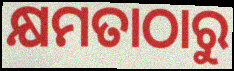
କ୍ଷମତାଠାରୁ